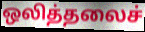
ஒலித்தலைச்